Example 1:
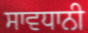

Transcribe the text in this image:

ਸਾਵਧਾਨੀ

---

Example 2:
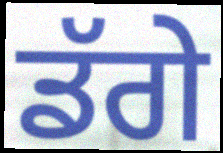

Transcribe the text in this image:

ਡੱਗੇ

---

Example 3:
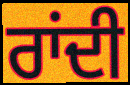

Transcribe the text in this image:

ਰਾਂਦੀ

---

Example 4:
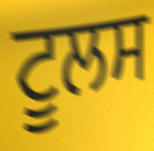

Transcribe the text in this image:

ਟੂਲਸ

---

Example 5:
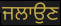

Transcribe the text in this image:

ਜਲਾਉਣ